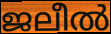
ജലീൽ